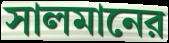
সালমানের